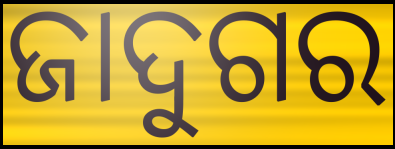
ଜାଦୁଗର